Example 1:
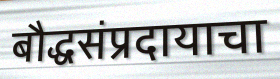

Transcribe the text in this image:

बौद्धसंप्रदायाचा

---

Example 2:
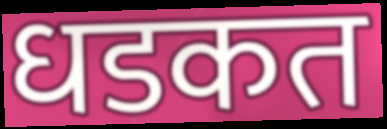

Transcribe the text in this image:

धडकत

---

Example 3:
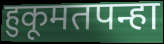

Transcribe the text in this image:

हुकूमतपन्हा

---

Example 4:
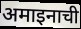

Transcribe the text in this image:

अमाइनाची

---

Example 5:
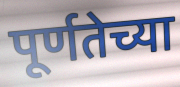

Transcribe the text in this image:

पूर्णतेच्या